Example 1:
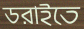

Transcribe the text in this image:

ডরাইতে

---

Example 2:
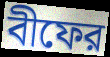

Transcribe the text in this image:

বীফের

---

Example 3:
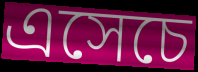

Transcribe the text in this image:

এসেচে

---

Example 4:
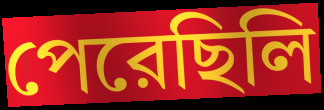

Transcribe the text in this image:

পেরেছিলি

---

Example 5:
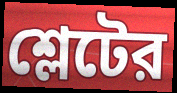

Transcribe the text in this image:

শ্লেটের